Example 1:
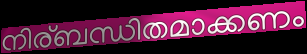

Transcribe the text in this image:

നിര്ബന്ധിതമാക്കണം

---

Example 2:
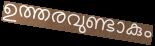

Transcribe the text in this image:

ഉത്തരവുണ്ടാകും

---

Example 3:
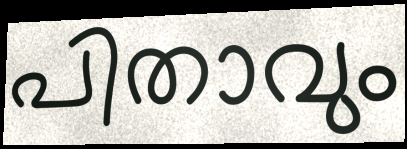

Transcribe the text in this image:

പിതാവും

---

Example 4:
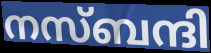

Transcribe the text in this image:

നസ്ബന്ദി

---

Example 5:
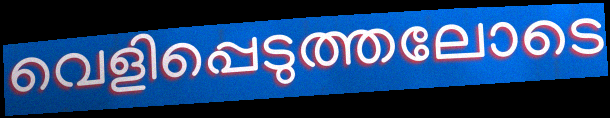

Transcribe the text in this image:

വെളിപ്പെടുത്തലോടെ